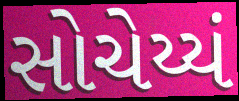
સોચેય્યં